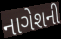
નાગેશની